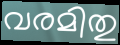
വരമിതു